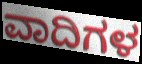
ವಾದಿಗಳ